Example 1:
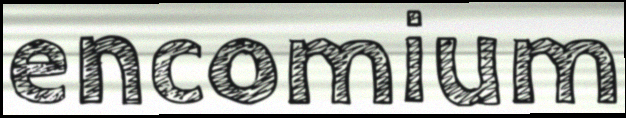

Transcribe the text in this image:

encomium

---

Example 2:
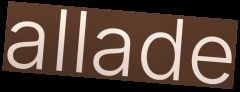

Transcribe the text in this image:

allade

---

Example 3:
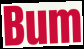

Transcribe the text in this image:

Bum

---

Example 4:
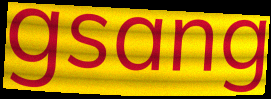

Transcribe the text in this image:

gsang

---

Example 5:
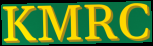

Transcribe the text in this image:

KMRC